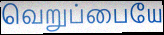
வெறுப்பையே